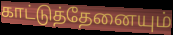
காட்டுத்தேனையும்